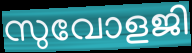
സുവോളജി